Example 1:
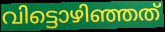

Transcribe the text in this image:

വിട്ടൊഴിഞ്ഞത്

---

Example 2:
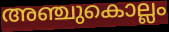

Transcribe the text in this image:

അഞ്ചുകൊല്ലം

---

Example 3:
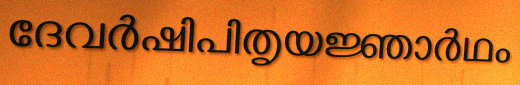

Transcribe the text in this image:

ദേവർഷിപിതൃയജ്ഞാർഥം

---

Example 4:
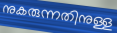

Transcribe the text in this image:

നുകരുന്നതിനുള്ള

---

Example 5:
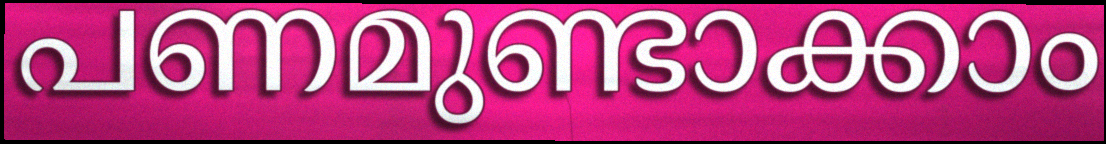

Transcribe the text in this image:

പണമുണ്ടാക്കാം